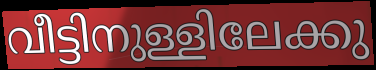
വീട്ടിനുള്ളിലേക്കു